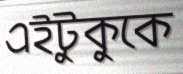
এইটুকুকে